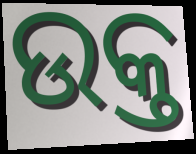
ଉକ୍ତ